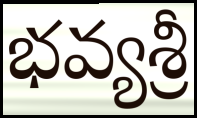
భవ్యశ్రీ